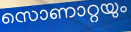
സൊണാറ്റയും